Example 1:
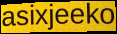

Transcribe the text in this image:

asixjeeko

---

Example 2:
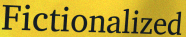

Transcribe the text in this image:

Fictionalized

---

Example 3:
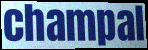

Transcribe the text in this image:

champal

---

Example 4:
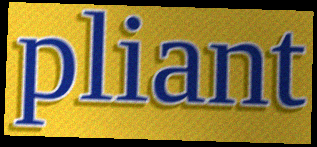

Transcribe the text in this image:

pliant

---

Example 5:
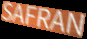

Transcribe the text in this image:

SAFRAN